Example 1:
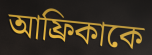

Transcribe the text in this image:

আফ্রিকাকে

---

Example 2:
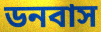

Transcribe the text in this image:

ডনবাস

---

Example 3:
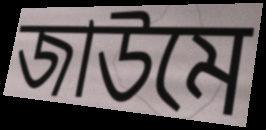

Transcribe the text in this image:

জাউমে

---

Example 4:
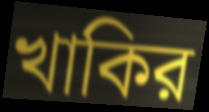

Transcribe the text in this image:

খাকির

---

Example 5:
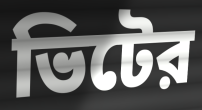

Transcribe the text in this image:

ভিটের